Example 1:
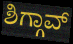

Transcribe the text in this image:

ಶಿಗ್ಗಾವ್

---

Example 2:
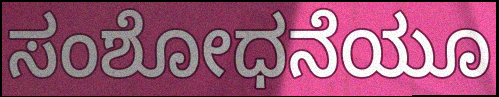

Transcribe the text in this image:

ಸಂಶೋಧನೆಯೂ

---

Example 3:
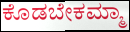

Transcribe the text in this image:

ಕೊಡಬೇಕಮ್ಮಾ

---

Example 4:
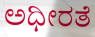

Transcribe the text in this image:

ಅಧೀರತೆ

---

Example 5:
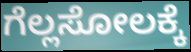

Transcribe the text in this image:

ಗೆಲ್ಲಸೋಲಕ್ಕೆ